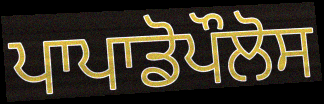
ਪਾਪਾਡੋਪੌਲੋਸ